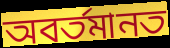
অবৰ্তমানত